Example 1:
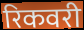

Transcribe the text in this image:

रिकवरी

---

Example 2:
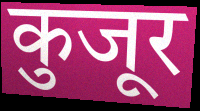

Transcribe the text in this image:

कुजूर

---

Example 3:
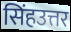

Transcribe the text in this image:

सिंहउत्तर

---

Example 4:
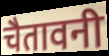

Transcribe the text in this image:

चैतावनी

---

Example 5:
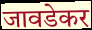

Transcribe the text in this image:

जावडेकर